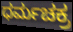
ಧರ್ಮಚಕ್ರ